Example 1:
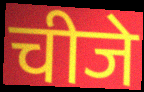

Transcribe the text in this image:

चीजे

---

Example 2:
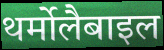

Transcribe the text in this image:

थर्मोलैबाइल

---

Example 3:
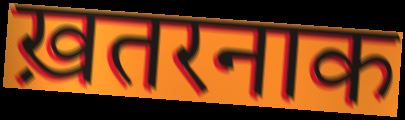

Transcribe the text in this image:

ख़तरनाक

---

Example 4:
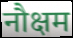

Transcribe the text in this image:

नौक्षम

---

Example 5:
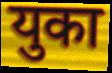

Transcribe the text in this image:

युका